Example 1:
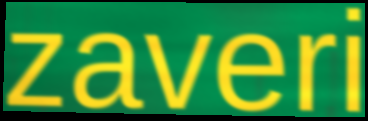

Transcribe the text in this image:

zaveri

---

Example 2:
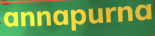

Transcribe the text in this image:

annapurna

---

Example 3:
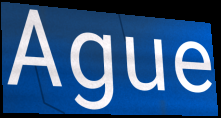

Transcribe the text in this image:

Ague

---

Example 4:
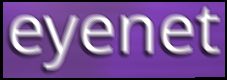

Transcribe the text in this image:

eyenet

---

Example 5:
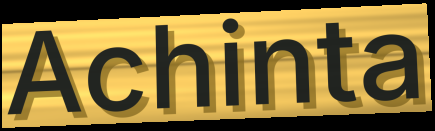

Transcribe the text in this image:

Achinta